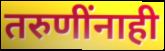
तरुणींनाही